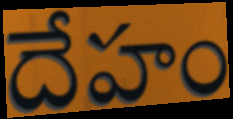
దేహం